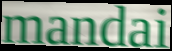
mandai